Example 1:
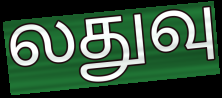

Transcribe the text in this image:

லதுவு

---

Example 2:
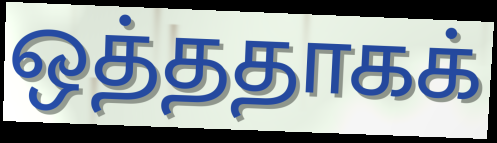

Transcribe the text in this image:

ஒத்ததாகக்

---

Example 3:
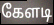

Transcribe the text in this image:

கேளடி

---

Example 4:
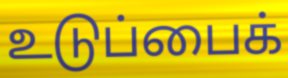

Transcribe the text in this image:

உடுப்பைக்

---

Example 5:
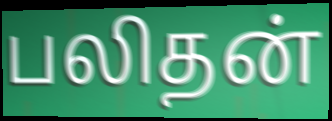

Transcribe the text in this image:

பலிதன்